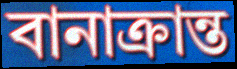
বানাক্ৰান্ত